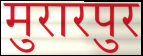
मुरारपुर